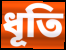
ধূতি